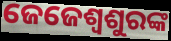
ଜେଜେଶ୍ୱଶୁରଙ୍କ